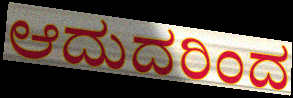
ಆದುದರಿಂದ